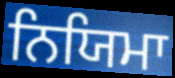
ਨਿਯਿਮਾ